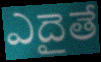
ఎదైతే